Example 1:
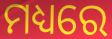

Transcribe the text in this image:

ମଧ୍ଯରେ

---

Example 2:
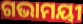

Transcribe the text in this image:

ଗଭାମୟୀ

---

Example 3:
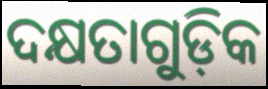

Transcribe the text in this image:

ଦକ୍ଷତାଗୁଡ଼ିକ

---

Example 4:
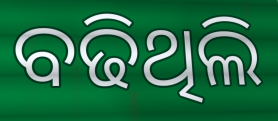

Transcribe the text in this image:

ବଢିଥିଲି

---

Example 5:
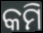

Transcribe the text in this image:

କମି